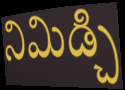
నిమిడ్చి